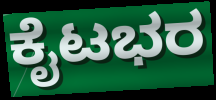
ಕೈಟಭರ